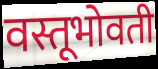
वस्तूभोवती